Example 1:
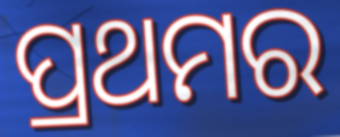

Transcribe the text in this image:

ପ୍ରଥମର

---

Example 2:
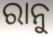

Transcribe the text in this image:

ରାନୁ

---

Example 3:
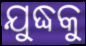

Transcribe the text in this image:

ଯୁଦ୍ଧକୁ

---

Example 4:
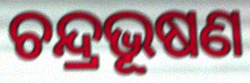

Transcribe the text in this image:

ଚନ୍ଦ୍ରଭୂଷଣ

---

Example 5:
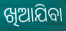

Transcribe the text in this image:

ଖିଆଯିବା